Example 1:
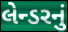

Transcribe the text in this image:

લેન્ડરનું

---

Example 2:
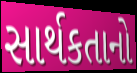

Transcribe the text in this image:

સાર્થકતાનો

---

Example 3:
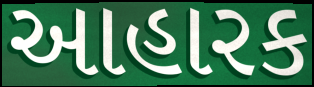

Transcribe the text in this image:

આહારક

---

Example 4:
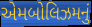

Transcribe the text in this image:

એમબોલિઝમનું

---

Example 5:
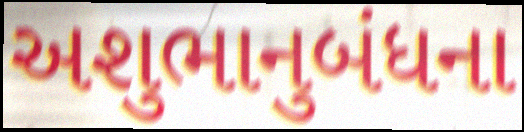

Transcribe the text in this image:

અશુભાનુબંધના